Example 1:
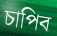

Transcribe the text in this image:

চাপিব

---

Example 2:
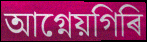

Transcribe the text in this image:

আগ্নেয়গিৰি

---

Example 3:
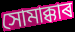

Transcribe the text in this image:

সোমাক্কাৰ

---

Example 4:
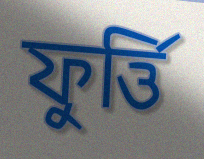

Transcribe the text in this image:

ফুৰ্ত্তি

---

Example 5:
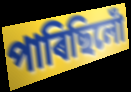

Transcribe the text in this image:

পাৰিছিলোঁ